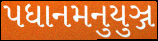
પધાનમનુયુઞ્જ